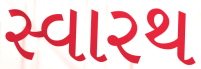
સ્વારથ